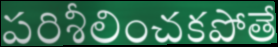
పరిశీలించకపోతే